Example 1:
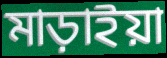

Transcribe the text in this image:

মাড়াইয়া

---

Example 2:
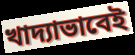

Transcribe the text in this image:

খাদ্যাভাবেই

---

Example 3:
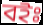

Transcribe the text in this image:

বইঃ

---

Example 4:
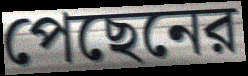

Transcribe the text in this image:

পেছেনের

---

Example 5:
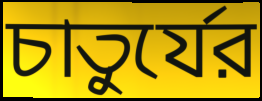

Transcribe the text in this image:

চাতুর্যের